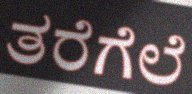
ತರೆಗೆಲೆ